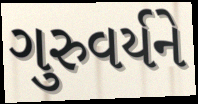
ગુરુવર્યને